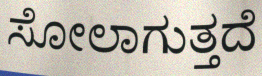
ಸೋಲಾಗುತ್ತದೆ